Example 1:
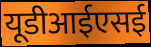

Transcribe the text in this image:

यूडीआईएसई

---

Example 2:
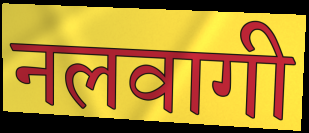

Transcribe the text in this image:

नलवागी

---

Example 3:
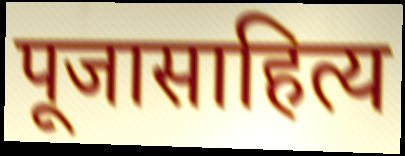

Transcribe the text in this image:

पूजासाहित्य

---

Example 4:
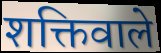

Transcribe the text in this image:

शक्तिवाले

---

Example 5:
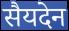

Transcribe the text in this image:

सैयदेन